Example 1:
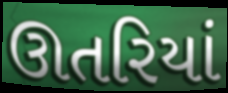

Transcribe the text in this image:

ઊતરિયાં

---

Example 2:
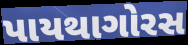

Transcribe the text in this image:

પાયથાગોરસ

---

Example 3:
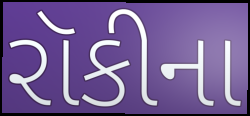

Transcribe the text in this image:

રૉકીના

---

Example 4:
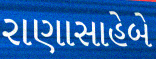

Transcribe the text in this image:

રાણાસાહેબે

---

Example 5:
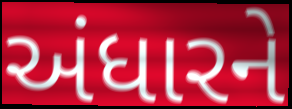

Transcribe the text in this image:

અંધારને